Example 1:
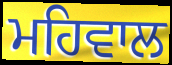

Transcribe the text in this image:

ਮਹਿਵਾਲ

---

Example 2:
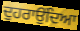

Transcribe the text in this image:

ਦੁਹਰਾਉਂਦਿਆ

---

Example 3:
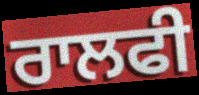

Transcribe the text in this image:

ਰਾਲਫੀ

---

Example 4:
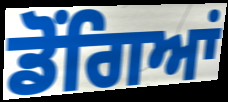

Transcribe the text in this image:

ਡੋਂਗਿਆਂ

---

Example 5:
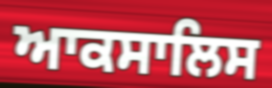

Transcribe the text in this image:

ਆਕਸਾਲਿਸ